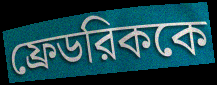
ফ্রেডরিককে